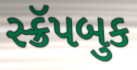
સ્ક્રૅપબુક